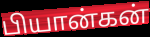
பியான்கன்